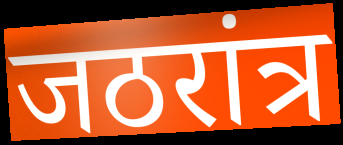
जठरांत्र